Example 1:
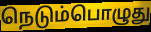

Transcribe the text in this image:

நெடும்பொழுது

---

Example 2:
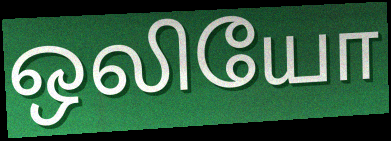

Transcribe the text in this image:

ஒலியோ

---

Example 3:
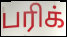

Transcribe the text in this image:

பரிக்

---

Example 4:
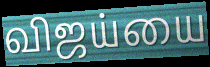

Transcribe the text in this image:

விஜய்யை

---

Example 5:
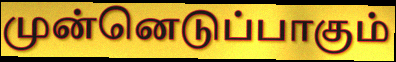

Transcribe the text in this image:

முன்னெடுப்பாகும்